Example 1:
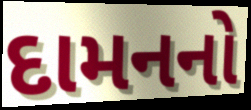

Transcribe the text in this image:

દામનનો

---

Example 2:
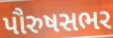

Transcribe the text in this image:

પૌરુષસભર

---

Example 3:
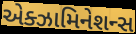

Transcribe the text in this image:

એક્ઝામિનેશન્સ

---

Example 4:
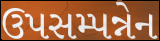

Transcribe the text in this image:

ઉપસમ્પન્નેન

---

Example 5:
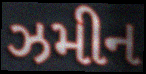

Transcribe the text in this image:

ઝમીન